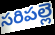
సరిపల్లె